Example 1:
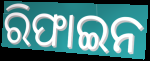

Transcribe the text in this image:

ରିଫାଇନ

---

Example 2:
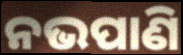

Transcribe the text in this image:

ନଭପାଣି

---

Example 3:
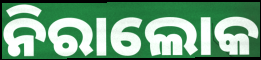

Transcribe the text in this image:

ନିରାଲୋକ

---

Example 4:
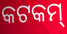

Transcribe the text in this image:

କଟକମ୍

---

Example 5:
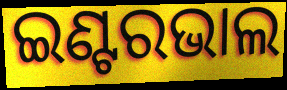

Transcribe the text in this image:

ଇଣ୍ଟରଭାଲ